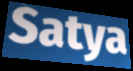
Satya